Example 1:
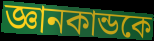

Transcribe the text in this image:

জ্ঞানকান্ডকে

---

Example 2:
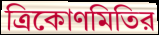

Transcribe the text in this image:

ত্রিকোণমিতির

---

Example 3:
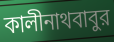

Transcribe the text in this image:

কালীনাথবাবুর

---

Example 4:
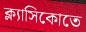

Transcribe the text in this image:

ক্ল্যাসিকোতে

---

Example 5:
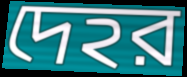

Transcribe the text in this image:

দেহর